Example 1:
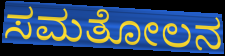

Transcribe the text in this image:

ಸಮತೋಲನ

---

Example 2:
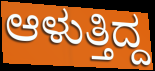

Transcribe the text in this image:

ಆಳುತ್ತಿದ್ದ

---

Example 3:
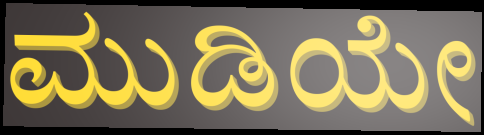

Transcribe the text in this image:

ಮುಡಿಯೇ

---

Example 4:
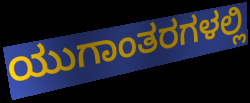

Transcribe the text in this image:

ಯುಗಾಂತರಗಳಲ್ಲಿ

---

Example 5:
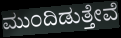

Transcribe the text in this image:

ಮುಂದಿಡುತ್ತೇವೆ